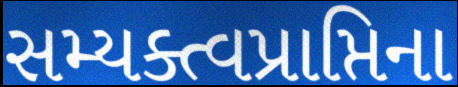
સમ્યક્ત્વપ્રાપ્તિના